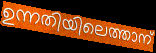
ഉന്നതിയിലെത്താന്